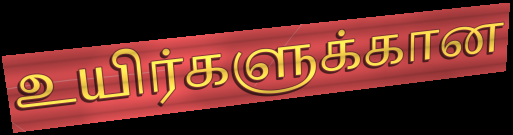
உயிர்களுக்கான